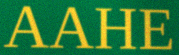
AAHE